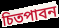
চিতপাবন